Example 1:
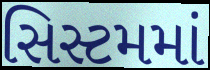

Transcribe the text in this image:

સિસ્ટમમાં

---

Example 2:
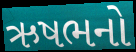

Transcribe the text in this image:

ઋષભનો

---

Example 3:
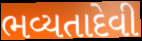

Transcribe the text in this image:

ભવ્યતાદેવી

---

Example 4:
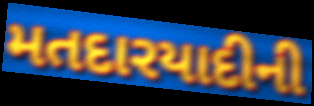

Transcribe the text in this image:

મતદારયાદીની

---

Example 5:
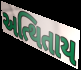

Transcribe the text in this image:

અત્થિતાય